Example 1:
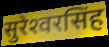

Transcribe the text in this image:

सुरेश्वरसिंह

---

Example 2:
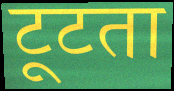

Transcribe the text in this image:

टूटता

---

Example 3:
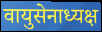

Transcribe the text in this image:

वायुसेनाध्यक्ष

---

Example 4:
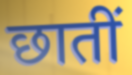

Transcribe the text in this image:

छातीं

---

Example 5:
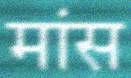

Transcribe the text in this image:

मांस